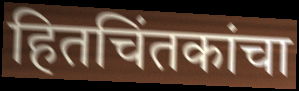
हितचिंतकांचा